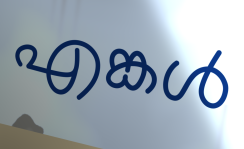
എങ്കൾ